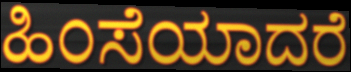
ಹಿಂಸೆಯಾದರೆ